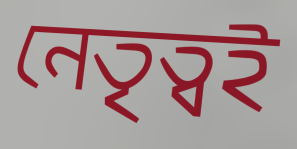
নেতৃত্বই